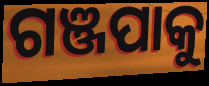
ଗଞ୍ଜପାକୁ